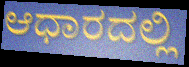
ಆಧಾರದಲ್ಲಿ